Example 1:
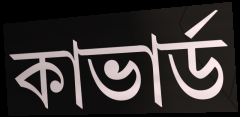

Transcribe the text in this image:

কাভার্ড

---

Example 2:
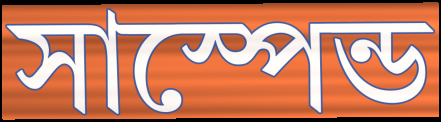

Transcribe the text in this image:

সাস্পেন্ড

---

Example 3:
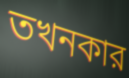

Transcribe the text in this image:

তখনকার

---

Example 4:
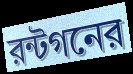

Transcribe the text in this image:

রন্টগনের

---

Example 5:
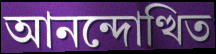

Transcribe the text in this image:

আনন্দোত্থিত